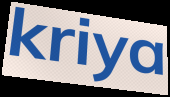
kriya